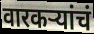
वारकऱ्यांचं